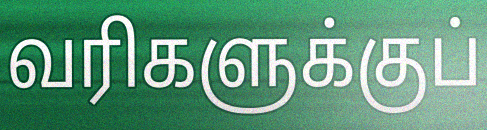
வரிகளுக்குப்